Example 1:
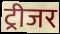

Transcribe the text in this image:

ट्रीजर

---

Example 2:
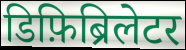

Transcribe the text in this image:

डिफ़िब्रिलेटर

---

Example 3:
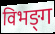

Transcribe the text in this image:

विभङ्ग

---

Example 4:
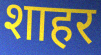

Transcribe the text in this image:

शाहर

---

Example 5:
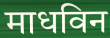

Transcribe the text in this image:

माधविन